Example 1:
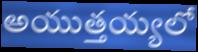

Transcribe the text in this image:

అయుత్తయ్యలో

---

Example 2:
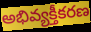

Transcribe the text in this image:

అభివ్యక్తీకరణ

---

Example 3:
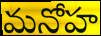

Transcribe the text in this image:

మనోహ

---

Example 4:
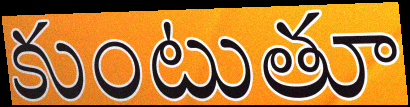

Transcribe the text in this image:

కుంటుతూ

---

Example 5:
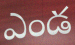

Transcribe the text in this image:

ఎండ